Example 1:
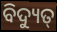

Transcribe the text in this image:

ବିଦ୍ୟୁତ୍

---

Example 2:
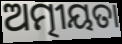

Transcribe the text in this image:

ଅତ୍ମୀୟତା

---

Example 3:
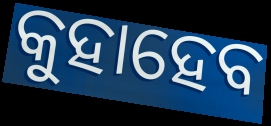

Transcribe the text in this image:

କୁହାହେବ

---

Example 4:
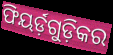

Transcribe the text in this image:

ଫିୟର୍ଡ଼ଗୁଡ଼ିକର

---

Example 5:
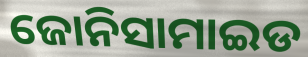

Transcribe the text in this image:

ଜୋନିସାମାଇଡ